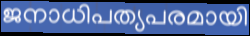
ജനാധിപത്യപരമായി